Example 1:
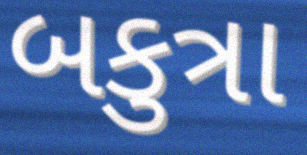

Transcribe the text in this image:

બકુત્રા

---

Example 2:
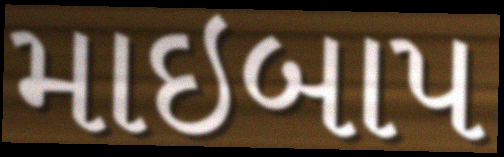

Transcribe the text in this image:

માઇબાપ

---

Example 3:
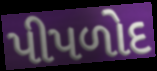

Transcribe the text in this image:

પીપળોદ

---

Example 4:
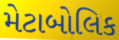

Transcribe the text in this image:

મેટાબોલિક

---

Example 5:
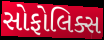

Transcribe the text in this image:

સોફોલિક્સ